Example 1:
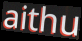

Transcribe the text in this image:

aithu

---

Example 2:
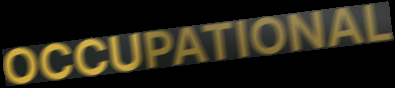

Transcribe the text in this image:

OCCUPATIONAL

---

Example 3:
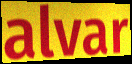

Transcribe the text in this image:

alvar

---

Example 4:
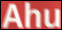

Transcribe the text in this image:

Ahu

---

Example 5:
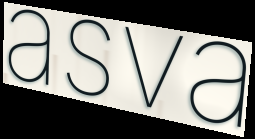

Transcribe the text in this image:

asva